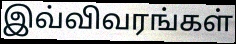
இவ்விவரங்கள்